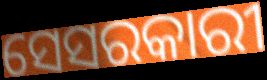
ସେସରକାରୀ